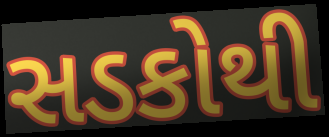
સડકોથી